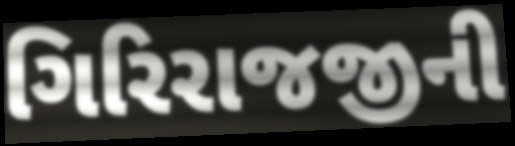
ગિરિરાજજીની